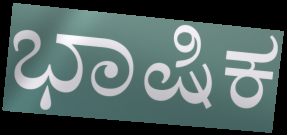
ಭಾಷಿಕ